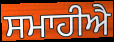
ਸਮਾਹੀਐ